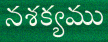
నశక్యము